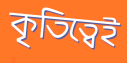
কৃতিত্বেই